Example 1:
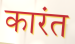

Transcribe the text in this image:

कारंत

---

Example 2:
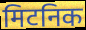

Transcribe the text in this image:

मिटनिक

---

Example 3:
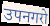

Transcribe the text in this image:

उपनगरो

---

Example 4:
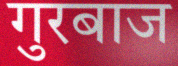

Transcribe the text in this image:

गुरबाज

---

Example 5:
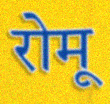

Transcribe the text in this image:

रोमू